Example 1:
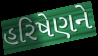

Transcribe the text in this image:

હરિષેણને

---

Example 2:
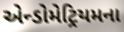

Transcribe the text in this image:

એન્ડોમેટ્રિયમના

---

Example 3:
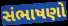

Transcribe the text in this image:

સંભાષણો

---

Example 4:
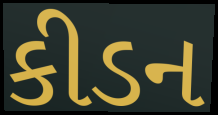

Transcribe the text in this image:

કીડન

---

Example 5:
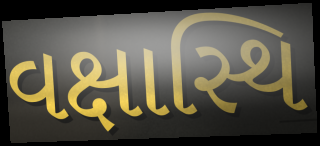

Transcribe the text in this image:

વક્ષાસ્થિ